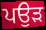
ਪਉੜ